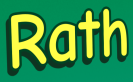
Rath